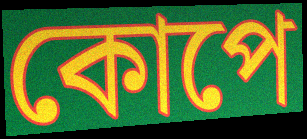
কোপে